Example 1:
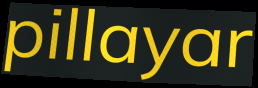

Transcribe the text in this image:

pillayar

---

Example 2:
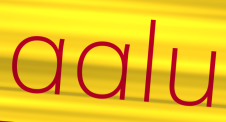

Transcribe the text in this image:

aalu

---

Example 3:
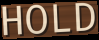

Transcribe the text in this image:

HOLD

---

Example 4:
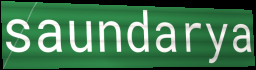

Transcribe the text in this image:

saundarya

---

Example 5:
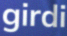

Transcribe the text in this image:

girdi